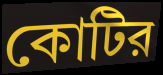
কোটির